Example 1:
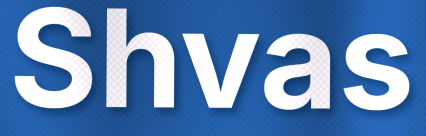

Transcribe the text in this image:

Shvas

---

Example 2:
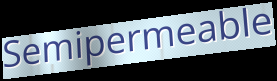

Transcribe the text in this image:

Semipermeable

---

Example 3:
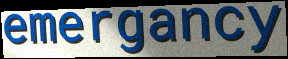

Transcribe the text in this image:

emergancy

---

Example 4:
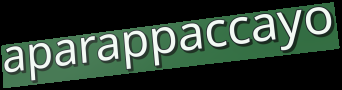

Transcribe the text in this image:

aparappaccayo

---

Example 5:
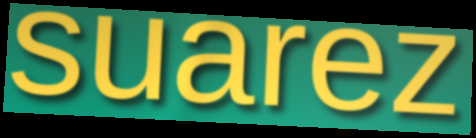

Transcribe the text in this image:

suarez